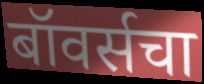
बॉवर्सचा